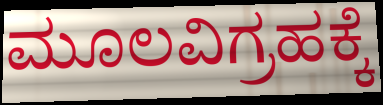
ಮೂಲವಿಗ್ರಹಕ್ಕೆ